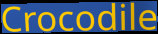
Crocodile